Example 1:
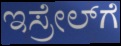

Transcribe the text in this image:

ಇಸ್ರೇಲ್‍ಗೆ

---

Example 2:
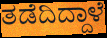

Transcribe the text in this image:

ತಡೆದಿದ್ದಾಳೆ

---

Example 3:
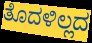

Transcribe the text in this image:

ತೊದಳಿಲ್ಲದ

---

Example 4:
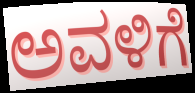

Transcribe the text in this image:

ಅವಳಿಗೆ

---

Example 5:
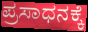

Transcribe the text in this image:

ಪ್ರಸಾಧನಕ್ಕೆ